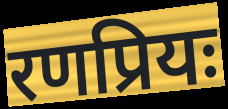
रणप्रियः